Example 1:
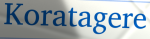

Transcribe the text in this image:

Koratagere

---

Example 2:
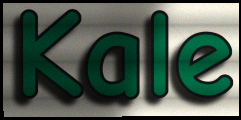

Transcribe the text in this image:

Kale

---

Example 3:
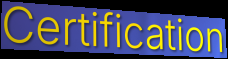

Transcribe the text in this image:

Certification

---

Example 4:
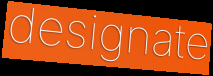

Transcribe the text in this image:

designate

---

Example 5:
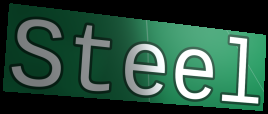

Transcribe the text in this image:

Steel